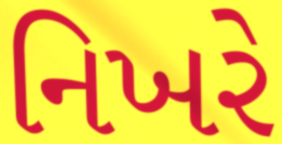
નિખરે